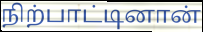
நிற்பாட்டினான்